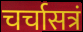
चर्चासत्रं